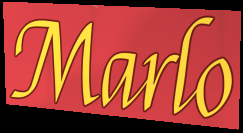
Marlo